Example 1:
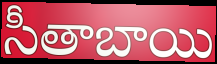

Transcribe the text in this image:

సీతాబాయి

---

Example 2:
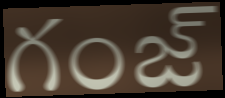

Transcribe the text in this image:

గంజ్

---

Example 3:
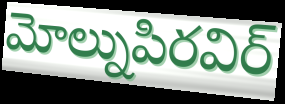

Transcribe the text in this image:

మోల్నుపిరవిర్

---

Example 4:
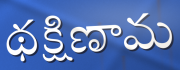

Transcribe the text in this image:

థక్షిణామ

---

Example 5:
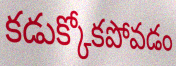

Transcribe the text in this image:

కడుక్కోకపోవడం